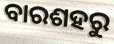
ବାରଶହରୁ